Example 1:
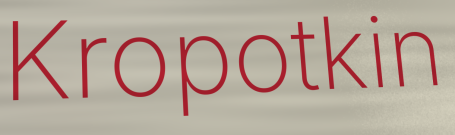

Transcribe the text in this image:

Kropotkin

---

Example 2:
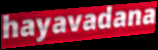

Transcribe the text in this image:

hayavadana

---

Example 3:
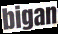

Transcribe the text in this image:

bigan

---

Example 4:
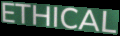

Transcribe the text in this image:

ETHICAL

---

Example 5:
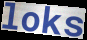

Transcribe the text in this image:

loks